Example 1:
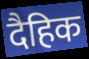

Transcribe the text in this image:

दैहिक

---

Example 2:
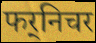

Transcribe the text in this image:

फर्निचर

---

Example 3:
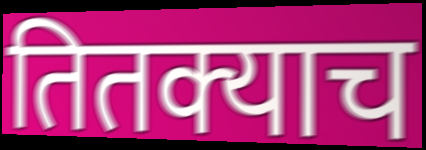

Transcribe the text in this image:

तितक्‍याच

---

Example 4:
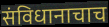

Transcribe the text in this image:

संविधानाचाच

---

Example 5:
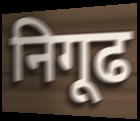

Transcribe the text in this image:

निगूढ